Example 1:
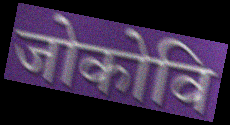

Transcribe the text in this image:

जोकोवि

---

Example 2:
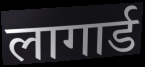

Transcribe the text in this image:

लागार्ड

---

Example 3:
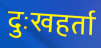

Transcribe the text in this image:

दुःखहर्ता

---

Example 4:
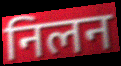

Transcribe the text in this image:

निलन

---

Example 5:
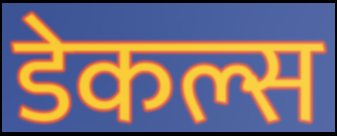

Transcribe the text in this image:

डेकल्स